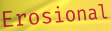
Erosional